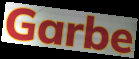
Garbe